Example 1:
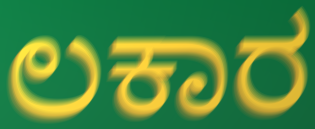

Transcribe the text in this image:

ಲಕಾರ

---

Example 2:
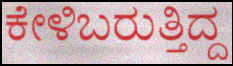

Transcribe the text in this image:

ಕೇಳಿಬರುತ್ತಿದ್ದ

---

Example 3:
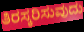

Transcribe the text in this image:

ತಿರಸ್ಕರಿಸುವುದು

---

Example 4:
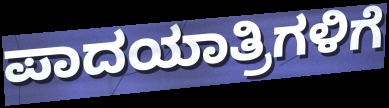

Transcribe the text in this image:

ಪಾದಯಾತ್ರಿಗಳಿಗೆ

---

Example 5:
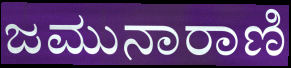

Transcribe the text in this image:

ಜಮುನಾರಾಣಿ